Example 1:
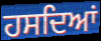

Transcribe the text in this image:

ਹਸਦਿਆਂ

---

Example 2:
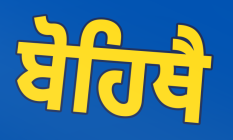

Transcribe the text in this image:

ਬੋਹਿਥੈ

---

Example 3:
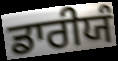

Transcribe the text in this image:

ਡਾਰੀਯੰ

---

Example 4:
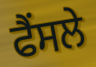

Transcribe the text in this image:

ਫੈਂਸਲੇ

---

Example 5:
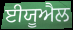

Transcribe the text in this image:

ਈਯੂਐਲ